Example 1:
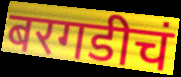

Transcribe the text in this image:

बरगडीचं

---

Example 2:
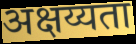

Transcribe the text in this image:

अक्षय्यता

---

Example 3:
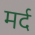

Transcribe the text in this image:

मर्द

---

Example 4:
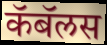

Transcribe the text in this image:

कॅबॅलस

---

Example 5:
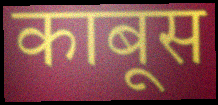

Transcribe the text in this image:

काबूस